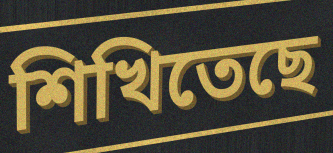
শিখিতেছে